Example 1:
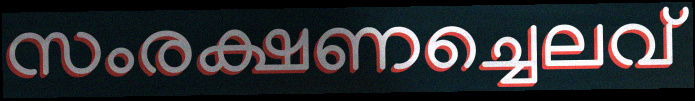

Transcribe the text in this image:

സംരക്ഷണച്ചെലവ്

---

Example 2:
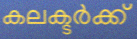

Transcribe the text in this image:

കലക്ടർക്ക്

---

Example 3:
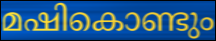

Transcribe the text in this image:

മഷികൊണ്ടും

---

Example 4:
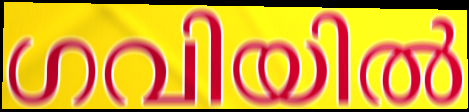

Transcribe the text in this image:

ഗവിയിൽ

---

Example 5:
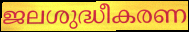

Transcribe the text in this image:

ജലശുദ്ധീകരണ